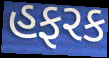
હફરક